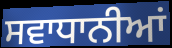
ਸਵਾਧਾਨੀਆਂ